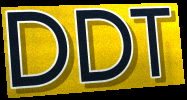
DDT